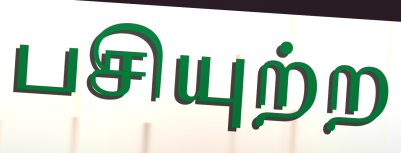
பசியுற்ற